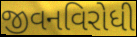
જીવનવિરોધી